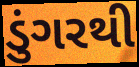
ડુંગરથી